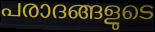
പരാദങ്ങളുടെ